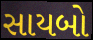
સાયબો